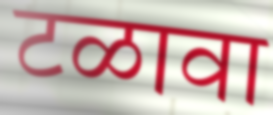
टळावा